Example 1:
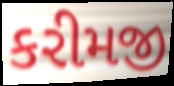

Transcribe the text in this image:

કરીમજી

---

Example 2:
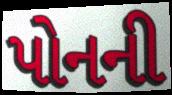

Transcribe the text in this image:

પોનની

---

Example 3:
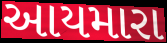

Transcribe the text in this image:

આયમારા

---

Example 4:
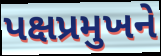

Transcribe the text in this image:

પક્ષપ્રમુખને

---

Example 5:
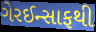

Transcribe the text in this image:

ગેરઈન્સાફથી